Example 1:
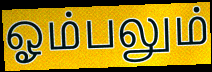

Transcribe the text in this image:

ஓம்பலும்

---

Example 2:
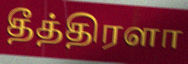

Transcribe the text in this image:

தீத்திரளா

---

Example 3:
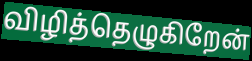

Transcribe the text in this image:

விழித்தெழுகிறேன்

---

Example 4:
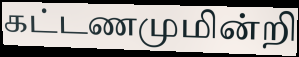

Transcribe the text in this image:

கட்டணமுமின்றி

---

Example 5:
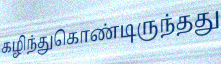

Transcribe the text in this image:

கழிந்துகொண்டிருந்தது